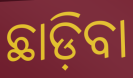
ଛାଡ଼ିବା